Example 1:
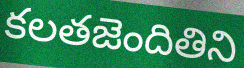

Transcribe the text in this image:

కలతజెందితిని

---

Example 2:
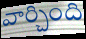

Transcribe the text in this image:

వార్చింది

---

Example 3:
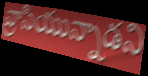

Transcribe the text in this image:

వ్రాసియున్నాడని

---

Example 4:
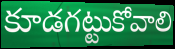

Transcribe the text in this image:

కూడగట్టుకోవాలి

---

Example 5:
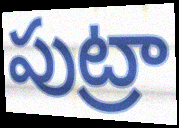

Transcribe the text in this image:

పుట్రా